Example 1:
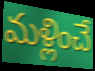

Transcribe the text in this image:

మళ్లించే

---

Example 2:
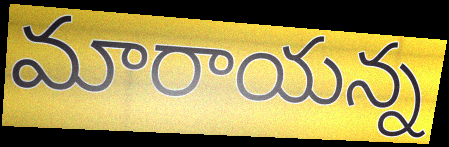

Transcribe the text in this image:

మారాయన్న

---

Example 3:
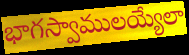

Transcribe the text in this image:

భాగస్వాములయ్యేలా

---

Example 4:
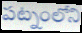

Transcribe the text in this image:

పట్నంలోని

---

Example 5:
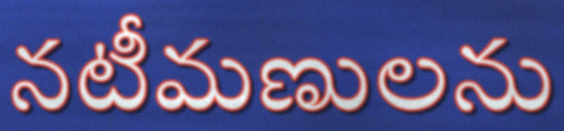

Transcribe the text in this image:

నటీమణులను